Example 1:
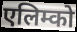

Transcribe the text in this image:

एलिम्को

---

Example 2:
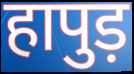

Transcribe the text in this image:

हापुड़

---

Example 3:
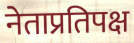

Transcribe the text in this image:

नेताप्रतिपक्ष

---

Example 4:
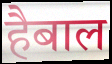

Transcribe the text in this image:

हैबाल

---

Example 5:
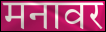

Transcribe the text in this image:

मनावर